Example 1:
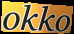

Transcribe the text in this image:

okko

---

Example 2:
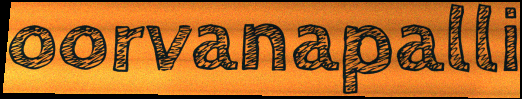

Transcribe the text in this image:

oorvanapalli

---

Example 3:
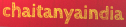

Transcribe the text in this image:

chaitanyaindia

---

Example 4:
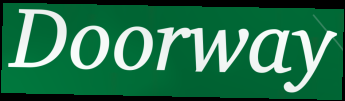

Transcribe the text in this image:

Doorway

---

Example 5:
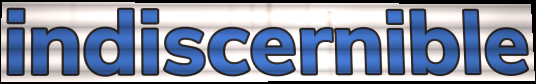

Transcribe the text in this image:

indiscernible